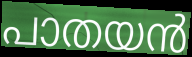
പാതയൻ